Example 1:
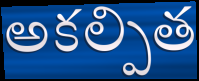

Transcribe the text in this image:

అకల్పిత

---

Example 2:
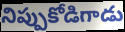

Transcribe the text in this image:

నిప్పుకోడిగాడు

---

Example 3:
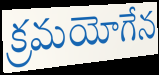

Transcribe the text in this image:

క్రమయోగేన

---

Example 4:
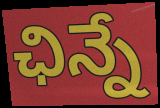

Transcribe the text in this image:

ఛిన్నే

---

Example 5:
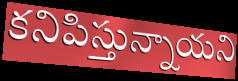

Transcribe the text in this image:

కనిపిస్తున్నాయని